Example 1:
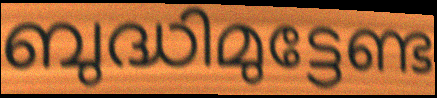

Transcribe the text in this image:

ബുദ്ധിമുട്ടേണ്ട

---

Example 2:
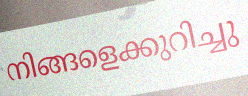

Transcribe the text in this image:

നിങ്ങളെക്കുറിച്ചു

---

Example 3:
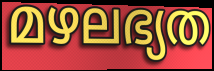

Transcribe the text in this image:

മഴലഭ്യത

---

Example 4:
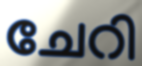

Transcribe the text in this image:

ചേറി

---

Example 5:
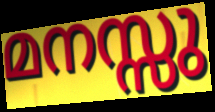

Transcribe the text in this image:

മനസ്സു